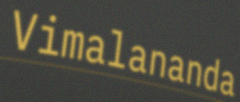
Vimalananda